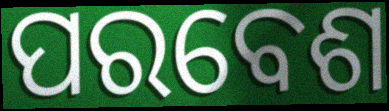
ପରବେଶ